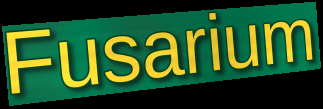
Fusarium